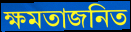
ক্ষমতাজনিত